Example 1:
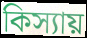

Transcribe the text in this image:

কিস্যায়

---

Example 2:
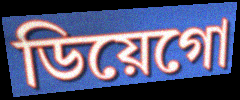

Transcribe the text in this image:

ডিয়েগো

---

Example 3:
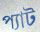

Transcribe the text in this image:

প্যাট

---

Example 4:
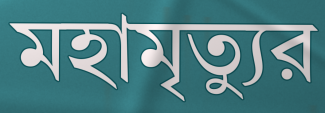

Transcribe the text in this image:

মহামৃত্যুর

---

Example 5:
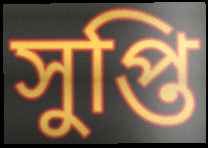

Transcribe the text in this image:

সুপ্তি